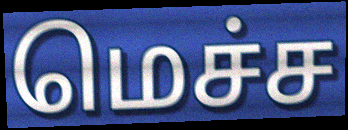
மெச்ச